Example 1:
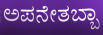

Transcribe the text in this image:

ಅಪನೇತಬ್ಬಾ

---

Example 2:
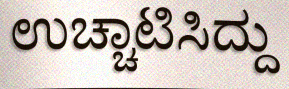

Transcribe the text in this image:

ಉಚ್ಚಾಟಿಸಿದ್ದು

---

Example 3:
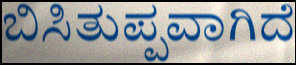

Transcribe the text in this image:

ಬಿಸಿತುಪ್ಪವಾಗಿದೆ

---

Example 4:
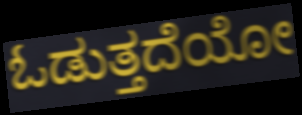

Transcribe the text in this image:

ಓಡುತ್ತದೆಯೋ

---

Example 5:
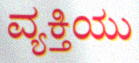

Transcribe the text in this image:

ವ್ಯಕ್ತಿಯು